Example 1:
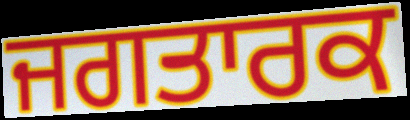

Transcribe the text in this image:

ਜਗਤਾਰਕ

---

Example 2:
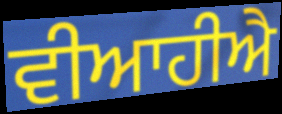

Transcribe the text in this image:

ਵੀਆਹੀਐ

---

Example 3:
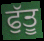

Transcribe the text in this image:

ਫੁੱਤੂ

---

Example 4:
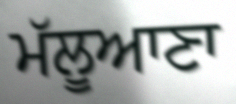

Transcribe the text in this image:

ਮੱਲੂਆਣਾ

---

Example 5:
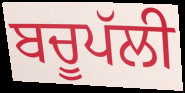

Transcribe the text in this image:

ਬਚੂਪੱਲੀ